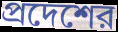
প্রদেশের